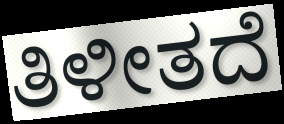
ತಿಳೀತದೆ